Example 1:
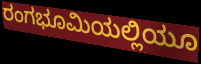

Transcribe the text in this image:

ರಂಗಭೂಮಿಯಲ್ಲಿಯೂ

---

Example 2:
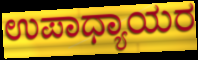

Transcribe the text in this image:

ಉಪಾಧ್ಯಾಯರ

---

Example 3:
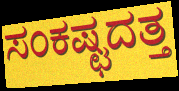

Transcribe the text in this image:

ಸಂಕಷ್ಟದತ್ತ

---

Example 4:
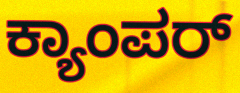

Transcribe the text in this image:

ಕ್ಯಾಂಪರ್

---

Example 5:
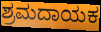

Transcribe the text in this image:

ಶ್ರಮದಾಯಕ